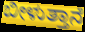
ಬೀಳುತ್ತಾನೆ